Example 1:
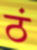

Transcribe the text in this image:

ठं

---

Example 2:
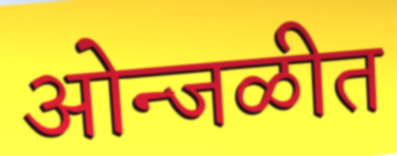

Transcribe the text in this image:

ओन्जळीत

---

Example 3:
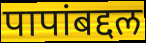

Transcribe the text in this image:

पापांबद्दल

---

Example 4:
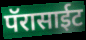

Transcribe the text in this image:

पॅरासाईट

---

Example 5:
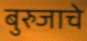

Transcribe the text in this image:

बुरुजाचे